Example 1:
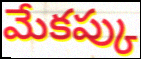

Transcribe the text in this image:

మేకప్కు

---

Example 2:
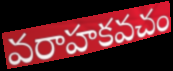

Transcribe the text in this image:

వరాహకవచం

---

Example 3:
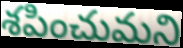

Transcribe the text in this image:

శపించుమని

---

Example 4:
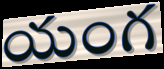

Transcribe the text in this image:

యంగ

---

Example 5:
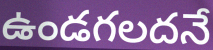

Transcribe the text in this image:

ఉండగలదనే